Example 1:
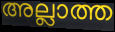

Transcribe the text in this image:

അല്ലാത്ത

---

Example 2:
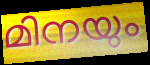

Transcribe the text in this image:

മിനയും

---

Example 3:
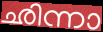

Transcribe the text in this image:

ഛിന്നാ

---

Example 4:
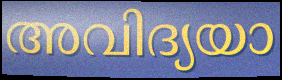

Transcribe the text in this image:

അവിദ്യയാ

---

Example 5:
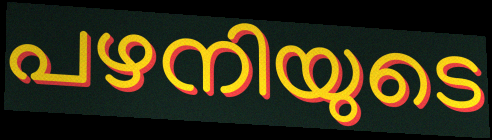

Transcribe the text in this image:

പഴനിയുടെ